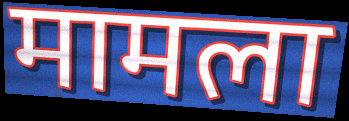
मामला